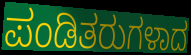
ಪಂಡಿತರುಗಳಾದ